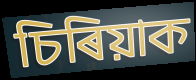
চিৰিয়াক